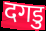
दगडु